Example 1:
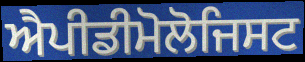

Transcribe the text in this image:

ਐਪੀਡੀਮੋਲੋਜਿਸਟ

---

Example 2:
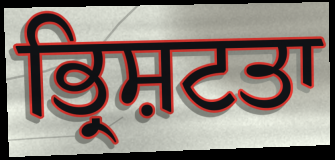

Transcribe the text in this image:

ਭ੍ਰਿਸ਼ਟਤਾ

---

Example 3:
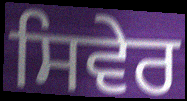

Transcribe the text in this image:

ਸਿਵੇਰ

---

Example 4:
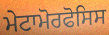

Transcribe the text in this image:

ਮੇਟਾਮੋਰਫੋਸਿਸ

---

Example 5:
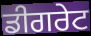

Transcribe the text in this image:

ਡੀਗਰੇਟ